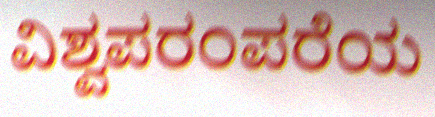
ವಿಶ್ವಪರಂಪರೆಯ